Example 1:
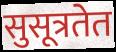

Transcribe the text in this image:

सुसूत्रतेत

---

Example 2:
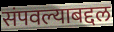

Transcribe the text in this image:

संपवल्याबद्दल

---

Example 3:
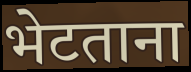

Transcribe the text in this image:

भेटताना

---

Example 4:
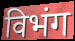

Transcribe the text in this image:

विभंग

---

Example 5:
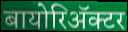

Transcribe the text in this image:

बायोरिॲक्टर